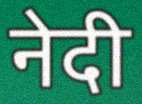
नेदी